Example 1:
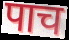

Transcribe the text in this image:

पाच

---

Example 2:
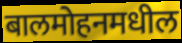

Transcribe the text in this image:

बालमोहनमधील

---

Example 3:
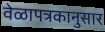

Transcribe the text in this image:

वेळापत्रकानुसार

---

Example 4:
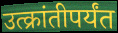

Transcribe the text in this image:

उत्क्रांतीपर्यंत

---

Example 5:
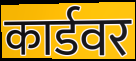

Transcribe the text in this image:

कार्डवर